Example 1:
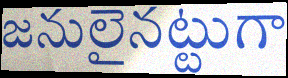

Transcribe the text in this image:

జనులైనట్టుగా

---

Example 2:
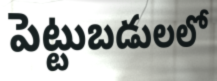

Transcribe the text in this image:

పెట్టుబడులలో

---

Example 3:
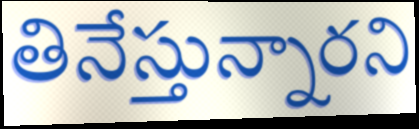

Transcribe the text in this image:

తినేస్తున్నారని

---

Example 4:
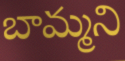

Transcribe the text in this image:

బామ్మని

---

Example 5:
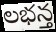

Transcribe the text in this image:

లభన్త